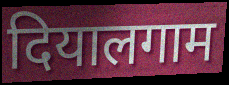
दियालगाम